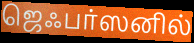
ஜெஃபர்ஸனில்